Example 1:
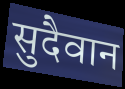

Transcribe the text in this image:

सुदैवान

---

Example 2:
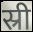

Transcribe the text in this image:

स्री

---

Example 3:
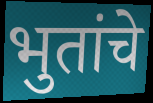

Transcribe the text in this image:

भुतांचे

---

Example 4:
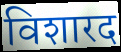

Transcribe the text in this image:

विशारद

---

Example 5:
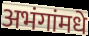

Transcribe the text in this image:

अभंगांमधे